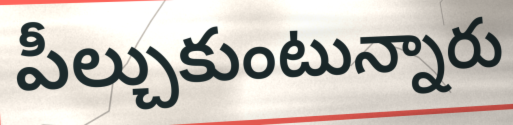
పీల్చుకుంటున్నారు